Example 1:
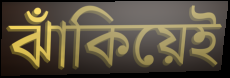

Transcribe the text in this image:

ঝাঁকিয়েই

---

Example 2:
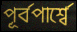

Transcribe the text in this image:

পূর্বপার্শ্বে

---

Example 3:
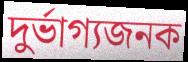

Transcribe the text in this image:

দুর্ভাগ্যজনক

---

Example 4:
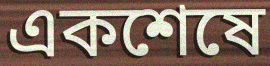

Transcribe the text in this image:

একশেষে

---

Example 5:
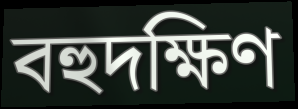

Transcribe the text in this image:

বহুদক্ষিণ